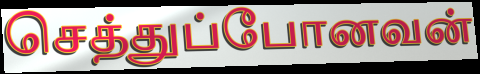
செத்துப்போனவன்